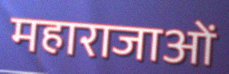
महाराजाओं